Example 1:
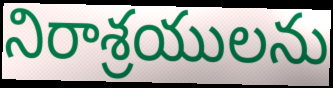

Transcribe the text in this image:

నిరాశ్రయులను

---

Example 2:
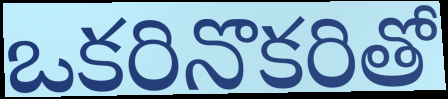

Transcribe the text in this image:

ఒకరినొకరితో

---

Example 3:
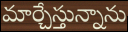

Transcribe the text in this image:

మార్చేస్తున్నాను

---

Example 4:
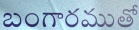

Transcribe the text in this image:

బంగారముతో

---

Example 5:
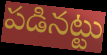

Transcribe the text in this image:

పడినట్టు